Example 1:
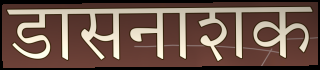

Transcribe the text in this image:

डासनाशक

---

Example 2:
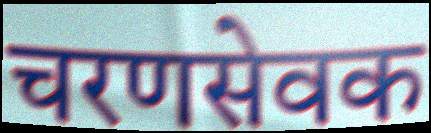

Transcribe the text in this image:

चरणसेवक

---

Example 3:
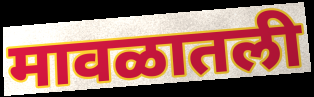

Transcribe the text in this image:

मावळातली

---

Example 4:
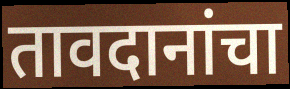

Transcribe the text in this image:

तावदानांचा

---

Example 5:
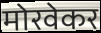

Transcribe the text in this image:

मोरवेकर